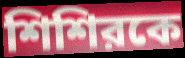
শিশিরকে